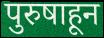
पुरुषाहून